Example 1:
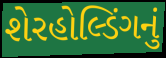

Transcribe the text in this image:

શેરહોલ્ડિંગનું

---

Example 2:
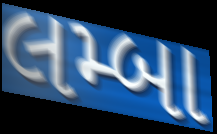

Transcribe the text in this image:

લમ્બા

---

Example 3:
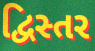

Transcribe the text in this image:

દ્વિસ્તર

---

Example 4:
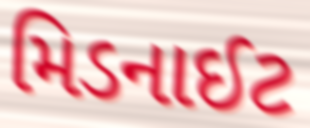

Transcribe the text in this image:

મિડનાઈટ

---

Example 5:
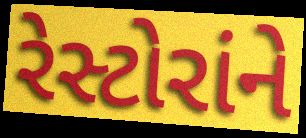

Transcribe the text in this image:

રેસ્ટોરાંને